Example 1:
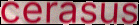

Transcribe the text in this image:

cerasus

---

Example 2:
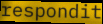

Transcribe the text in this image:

respondit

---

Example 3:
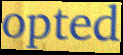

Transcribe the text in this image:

opted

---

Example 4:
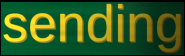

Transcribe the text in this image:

sending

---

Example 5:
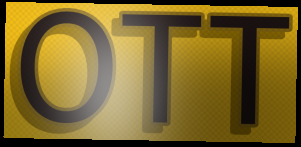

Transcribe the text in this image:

OTT